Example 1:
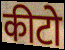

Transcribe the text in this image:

कीटो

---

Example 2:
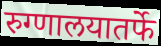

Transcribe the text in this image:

रुग्णालयातर्फे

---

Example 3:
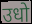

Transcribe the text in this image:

उधो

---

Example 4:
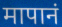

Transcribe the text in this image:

मापानं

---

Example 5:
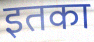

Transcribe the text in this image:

इतका